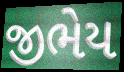
જીભેય